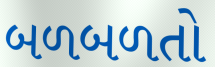
બળબળતો